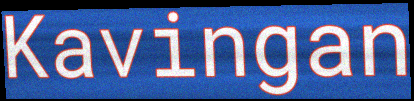
Kavingan